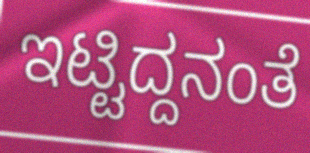
ಇಟ್ಟಿದ್ದನಂತೆ